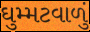
ઘુમ્મટવાળું